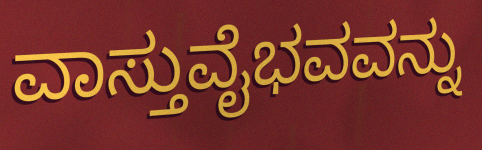
ವಾಸ್ತುವೈಭವವನ್ನು